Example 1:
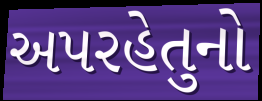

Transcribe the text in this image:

અપરહેતુનો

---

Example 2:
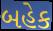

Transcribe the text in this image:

બહેક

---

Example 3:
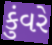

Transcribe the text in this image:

કુંવરે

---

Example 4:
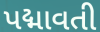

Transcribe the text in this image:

પદ્માવતી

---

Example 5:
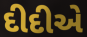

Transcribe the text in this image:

દીદીએ